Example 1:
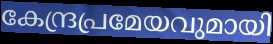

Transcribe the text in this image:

കേന്ദ്രപ്രമേയവുമായി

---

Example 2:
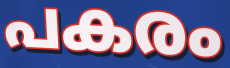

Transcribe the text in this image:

പകരം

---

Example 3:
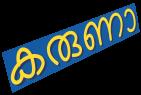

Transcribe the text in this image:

കരുണാ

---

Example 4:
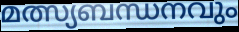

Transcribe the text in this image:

മത്സ്യബന്ധനവും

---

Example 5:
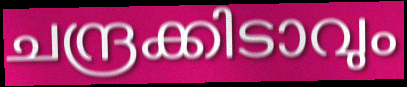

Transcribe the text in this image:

ചന്ദ്രക്കിടാവും